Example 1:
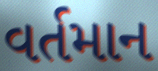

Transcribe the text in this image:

વર્તમાન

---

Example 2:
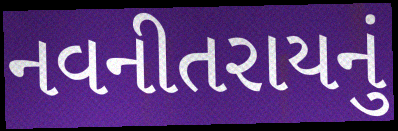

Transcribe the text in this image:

નવનીતરાયનું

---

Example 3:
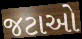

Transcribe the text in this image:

જટાઓ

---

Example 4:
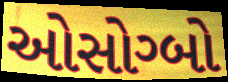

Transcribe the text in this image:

ઓસોગ્બો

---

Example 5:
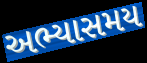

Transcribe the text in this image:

અભ્યાસમય